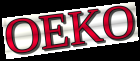
OEKO